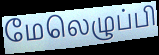
மேலெழுப்பி